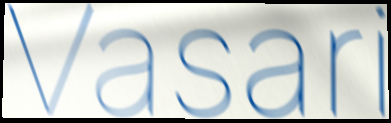
Vasari